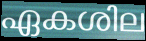
ഏകശില